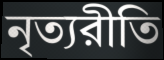
নৃত্যরীতি